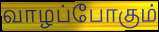
வாழப்போகும்